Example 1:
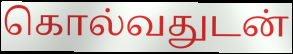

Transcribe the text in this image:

கொல்வதுடன்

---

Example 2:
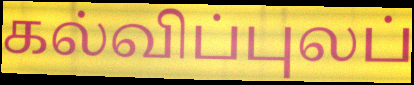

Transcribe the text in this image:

கல்விப்புலப்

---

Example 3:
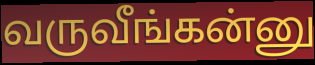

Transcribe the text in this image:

வருவீங்கன்னு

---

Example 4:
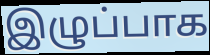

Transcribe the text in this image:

இழுப்பாக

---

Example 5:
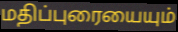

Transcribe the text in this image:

மதிப்புரையையும்